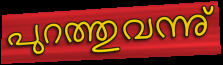
പുറത്തുവന്നു്